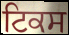
ਟਿਕਸ